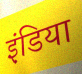
इ़ंडिया